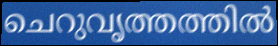
ചെറുവൃത്തത്തിൽ